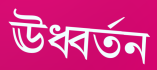
ঊধ্বর্তন